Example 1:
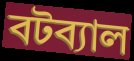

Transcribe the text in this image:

বটব্যাল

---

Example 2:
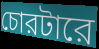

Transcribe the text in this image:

চোরটারে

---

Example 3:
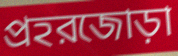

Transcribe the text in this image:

প্রহরজোড়া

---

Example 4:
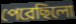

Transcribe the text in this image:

পেরেছিলো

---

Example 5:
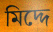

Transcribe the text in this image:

মিদ্দে